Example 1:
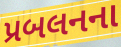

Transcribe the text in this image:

પ્રબલનના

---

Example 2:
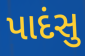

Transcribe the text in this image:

પાદંસુ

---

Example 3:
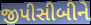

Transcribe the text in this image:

જીપીસીબીને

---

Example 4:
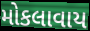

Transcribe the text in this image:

મોકલાવાય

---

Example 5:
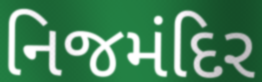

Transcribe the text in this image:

નિજમંદિર